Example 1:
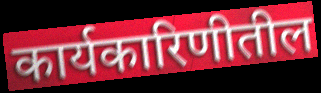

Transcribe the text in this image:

कार्यकारिणीतील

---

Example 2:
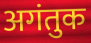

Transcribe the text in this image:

अगंतुक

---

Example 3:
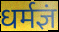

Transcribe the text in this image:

धर्मज्ञं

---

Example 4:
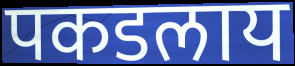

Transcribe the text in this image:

पकडलाय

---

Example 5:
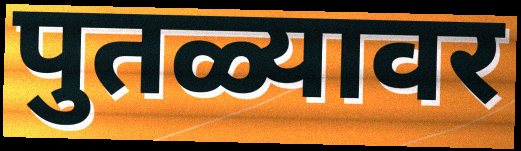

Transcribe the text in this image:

पुतळ्यावर